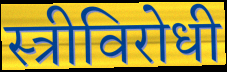
स्त्रीविरोधी